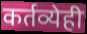
कर्तव्येही